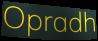
Opradh